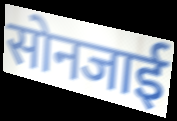
सोनजाई